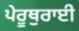
ਪੇਰੂਥੁਰਾਈ